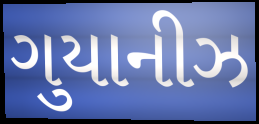
ગુયાનીઝ